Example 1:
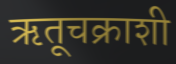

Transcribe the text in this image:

ऋतूचक्राशी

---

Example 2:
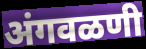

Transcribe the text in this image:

अंगवळणी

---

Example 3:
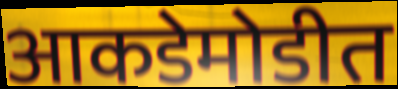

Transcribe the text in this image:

आकडेमोडीत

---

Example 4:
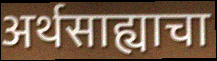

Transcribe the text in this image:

अर्थसाह्याचा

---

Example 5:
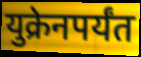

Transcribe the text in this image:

युक्रेनपर्यंत